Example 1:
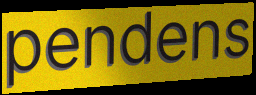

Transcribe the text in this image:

pendens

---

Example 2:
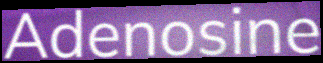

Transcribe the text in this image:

Adenosine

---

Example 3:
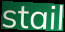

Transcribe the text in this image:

stail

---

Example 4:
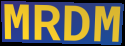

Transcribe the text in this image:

MRDM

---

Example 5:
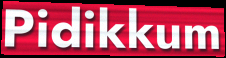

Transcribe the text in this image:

Pidikkum